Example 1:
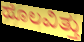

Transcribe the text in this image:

ಹೊಲವಿತ್ತು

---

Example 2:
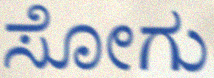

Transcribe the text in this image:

ಸೋಗು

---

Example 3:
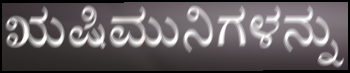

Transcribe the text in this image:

ಋಷಿಮುನಿಗಳನ್ನು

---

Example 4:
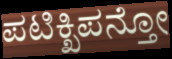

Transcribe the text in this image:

ಪಟಿಕ್ಖಿಪನ್ತೋ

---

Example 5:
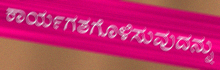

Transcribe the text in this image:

ಕಾರ್ಯಗತಗೊಳಿಸುವುದನ್ನು